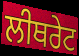
ਲੀਥਰੇਟ